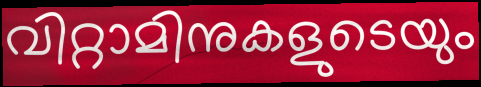
വിറ്റാമിനുകളുടെയും